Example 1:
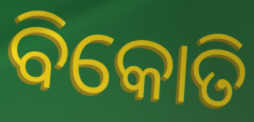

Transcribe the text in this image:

ବିକୋତି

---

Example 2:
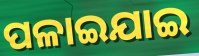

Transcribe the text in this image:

ପଳାଇଯାଇ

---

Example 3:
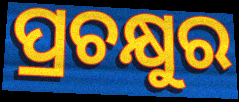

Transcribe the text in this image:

ପ୍ରଚକ୍ଷୁର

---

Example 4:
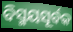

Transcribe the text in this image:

ବିସ୍ମୟସୂର୍ବକ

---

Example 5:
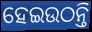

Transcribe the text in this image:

ହେଇଉଠନ୍ତି